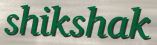
shikshak